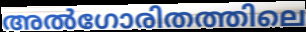
അൽഗോരിതത്തിലെ